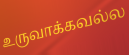
உருவாக்கவல்ல